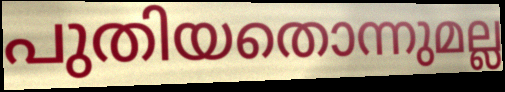
പുതിയതൊന്നുമല്ല